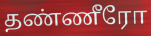
தண்ணீரோ